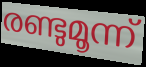
രണ്ടുമൂന്ന്